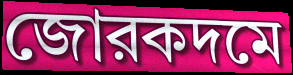
জোরকদমে